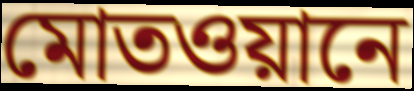
মোতওয়ানে